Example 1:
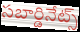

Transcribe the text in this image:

సబార్డినేట్స్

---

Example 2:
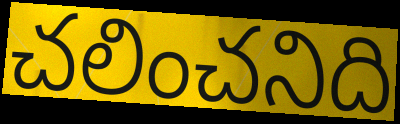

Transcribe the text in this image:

చలించనిది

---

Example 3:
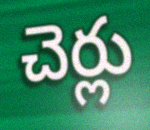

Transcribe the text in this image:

చెర్లు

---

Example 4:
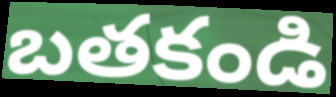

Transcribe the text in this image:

బతకండి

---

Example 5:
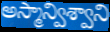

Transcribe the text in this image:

అస్మాన్విశ్వాని